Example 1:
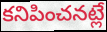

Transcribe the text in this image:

కనిపించనట్లే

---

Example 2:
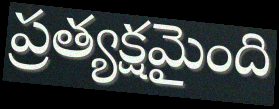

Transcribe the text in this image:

ప్రత్యక్షమైంది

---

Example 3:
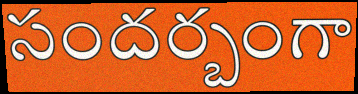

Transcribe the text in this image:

సందర్బంగా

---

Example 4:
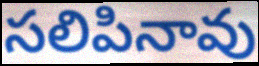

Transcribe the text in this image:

సలిపినావు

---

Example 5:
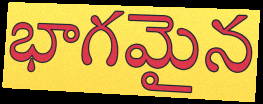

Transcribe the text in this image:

భాగమైన